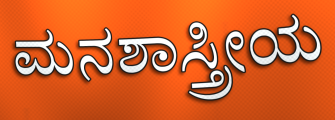
ಮನಶಾಸ್ತ್ರೀಯ